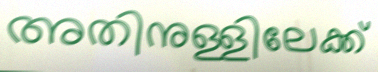
അതിനുള്ളിലേക്ക്